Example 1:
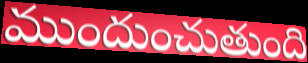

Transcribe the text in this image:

ముందుంచుతుంది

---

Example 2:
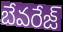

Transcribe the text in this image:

బేవరేజ్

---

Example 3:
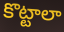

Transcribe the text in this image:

కొట్టాలా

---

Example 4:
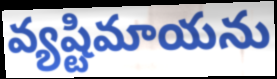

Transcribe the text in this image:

వ్యష్టిమాయను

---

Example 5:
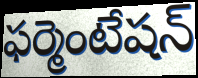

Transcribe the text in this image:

ఫర్మెంటేషన్